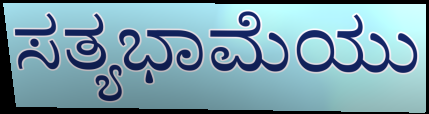
ಸತ್ಯಭಾಮೆಯು